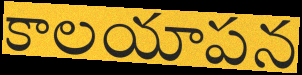
కాలయాపన